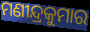
ମଣୀନ୍ଦ୍ରକୁମାର